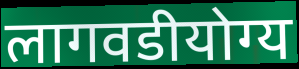
लागवडीयोग्य